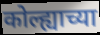
कोल्ह्याच्या